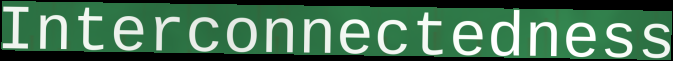
Interconnectedness